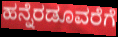
ಹನ್ನೆರಡೂವರೆಗೆ